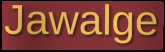
Jawalge